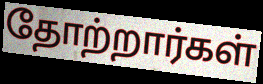
தோற்றார்கள்